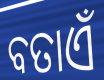
ବତାଏଁ